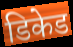
डिकेड